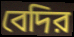
বেদির